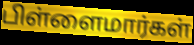
பிள்ளைமார்கள்